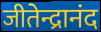
जीतेन्द्रानंद